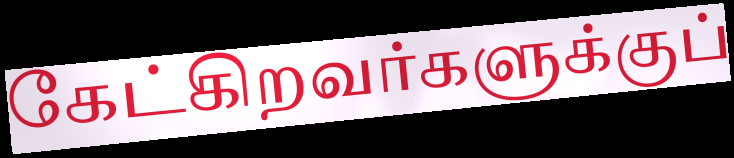
கேட்கிறவர்களுக்குப்